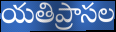
యతిప్రాసల